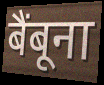
बैंबूना